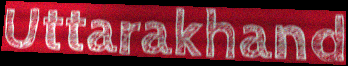
Uttarakhand